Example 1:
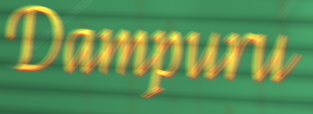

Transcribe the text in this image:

Dampuru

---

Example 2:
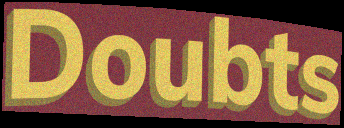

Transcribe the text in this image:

Doubts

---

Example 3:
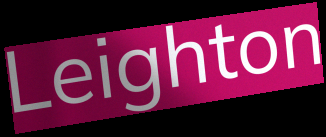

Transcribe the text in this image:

Leighton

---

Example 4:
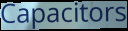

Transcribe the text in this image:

Capacitors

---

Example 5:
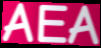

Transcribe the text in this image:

AEA